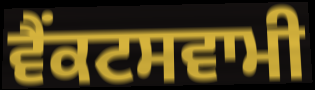
ਵੈਂਕਟਸਵਾਮੀ